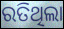
ରତିଥିଲା